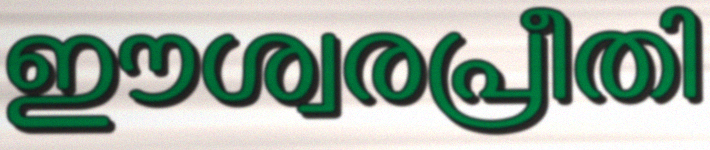
ഈശ്വരപ്രീതി